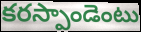
కరస్పాండెంటు